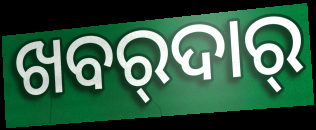
ଖବର୍‍ଦାର୍